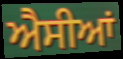
ਐਸੀਆਂ